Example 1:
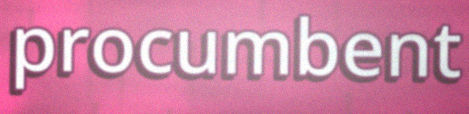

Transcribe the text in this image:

procumbent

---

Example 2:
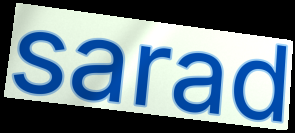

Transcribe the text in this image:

sarad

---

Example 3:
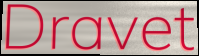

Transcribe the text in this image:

Dravet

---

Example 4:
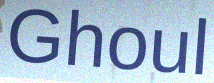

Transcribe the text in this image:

Ghoul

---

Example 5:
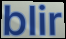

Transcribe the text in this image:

blir